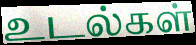
உடல்கள்